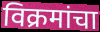
विक्रमांचा